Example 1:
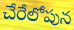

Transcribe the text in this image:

చేరేలోపున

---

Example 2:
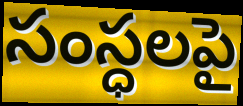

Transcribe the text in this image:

సంస్ధలపై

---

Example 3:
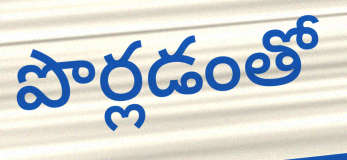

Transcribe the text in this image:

పొర్లడంతో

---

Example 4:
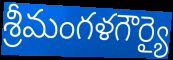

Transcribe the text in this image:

శ్రీమంగళగౌర్యై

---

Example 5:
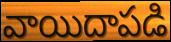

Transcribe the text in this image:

వాయిదాపడి